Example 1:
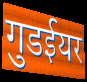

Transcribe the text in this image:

गुडईयर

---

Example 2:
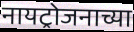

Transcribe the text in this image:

नायट्रोजनाच्या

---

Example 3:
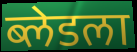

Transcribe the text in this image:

ब्लेडला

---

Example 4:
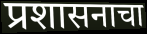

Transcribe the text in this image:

प्रशासनाचा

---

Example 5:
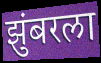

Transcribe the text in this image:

झुंबरला